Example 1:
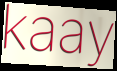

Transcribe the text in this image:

kaay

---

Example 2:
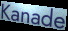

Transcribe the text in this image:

Kanade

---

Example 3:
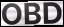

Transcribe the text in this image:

OBD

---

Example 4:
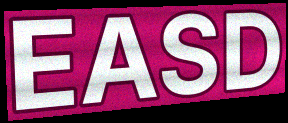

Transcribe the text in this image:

EASD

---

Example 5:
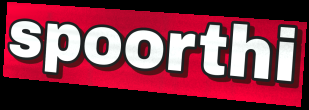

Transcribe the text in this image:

spoorthi